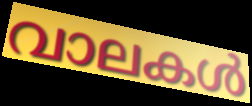
വാലകൾ